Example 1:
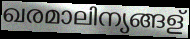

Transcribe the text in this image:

ഖരമാലിന്യങ്ങള്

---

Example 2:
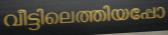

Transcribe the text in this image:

വീട്ടിലെത്തിയപ്പോ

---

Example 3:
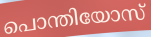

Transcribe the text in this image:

പൊന്തിയോസ്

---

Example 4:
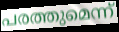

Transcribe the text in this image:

പരത്തുമെന്ന്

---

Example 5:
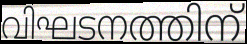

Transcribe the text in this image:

വിഘടനത്തിന്